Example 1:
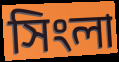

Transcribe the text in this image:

সিংলা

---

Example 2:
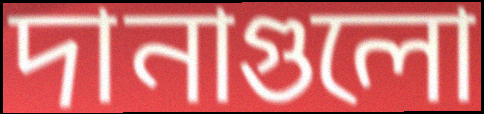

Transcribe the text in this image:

দানাগুলো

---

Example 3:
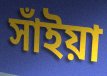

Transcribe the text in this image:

সাঁইয়া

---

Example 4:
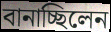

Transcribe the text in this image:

বানাচ্ছিলেন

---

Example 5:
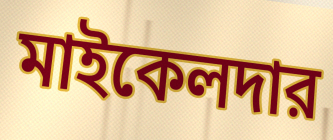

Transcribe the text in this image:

মাইকেলদার